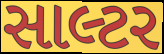
સાલ્ટર